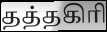
தத்தகிரி